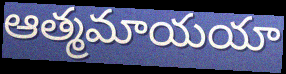
ఆత్మమాయయా